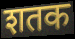
शतक